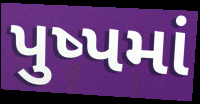
પુષ્પમાં